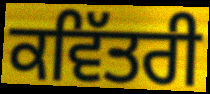
ਕਵਿੱਤਰੀ